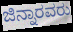
ಜಿನ್ನಾರವರು